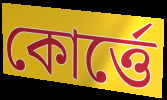
কোর্ত্তে